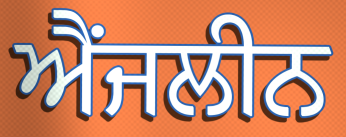
ਐਂਜਲੀਨ